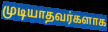
முடியாதவர்களாக